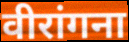
वीरांगना